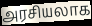
அரசியலாக